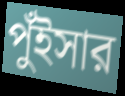
পুঁইসার